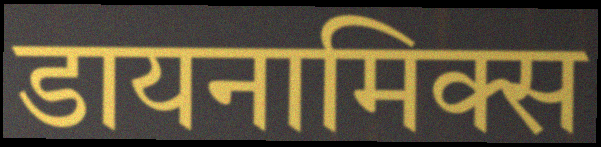
डायनामिक्स